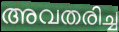
അവതരിച്ച